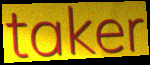
taker